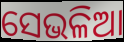
ସେଭଳିଆ